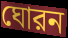
ঘোরন